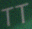
TT